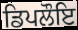
ਡਿਪਲੌਇ